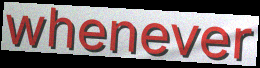
whenever